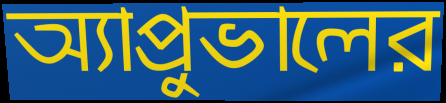
অ্যাপ্রুভালের